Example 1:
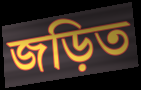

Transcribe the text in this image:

জড়িত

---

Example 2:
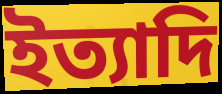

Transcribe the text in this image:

ইত্যাদি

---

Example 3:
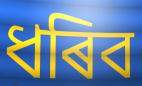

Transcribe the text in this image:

ধৰিব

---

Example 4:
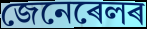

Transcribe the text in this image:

জেনেৰেলৰ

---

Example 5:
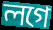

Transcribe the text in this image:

লগে